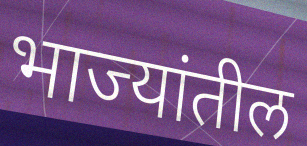
भाज्यांतील